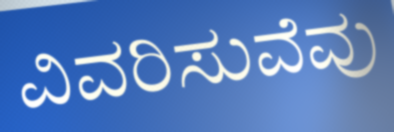
ವಿವರಿಸುವೆವು